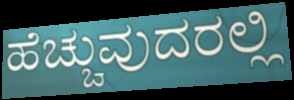
ಹೆಚ್ಚುವುದರಲ್ಲಿ